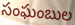
సంఘంబుల